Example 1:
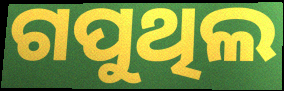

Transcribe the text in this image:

ଗପୁଥିଲ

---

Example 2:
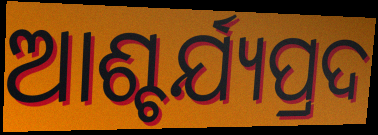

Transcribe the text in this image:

ଆଶ୍ଚର୍ଯ୍ୟପ୍ରଦ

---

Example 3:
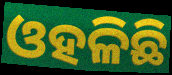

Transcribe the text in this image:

ଓହଳିଛି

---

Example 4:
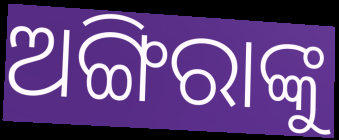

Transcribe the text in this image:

ଅଙ୍ଗିରାଙ୍କୁ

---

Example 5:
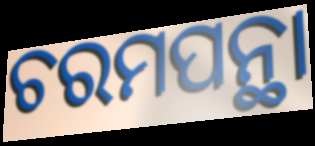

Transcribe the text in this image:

ଚରମପନ୍ଥା